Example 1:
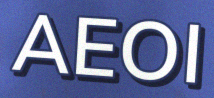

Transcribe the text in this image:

AEOI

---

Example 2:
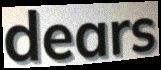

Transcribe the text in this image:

dears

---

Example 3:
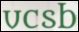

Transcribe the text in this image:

ucsb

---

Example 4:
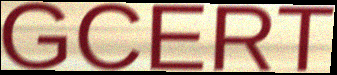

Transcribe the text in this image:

GCERT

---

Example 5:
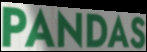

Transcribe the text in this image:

PANDAS